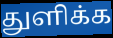
துளிக்க